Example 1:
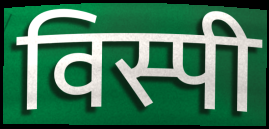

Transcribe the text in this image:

विस्पी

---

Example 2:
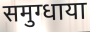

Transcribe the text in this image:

समुग्धाया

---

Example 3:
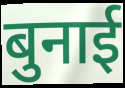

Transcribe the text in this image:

बुनाई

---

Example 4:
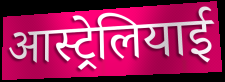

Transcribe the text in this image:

आस्ट्रेलियाई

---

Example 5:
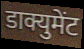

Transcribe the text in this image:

डाक्युमेंट